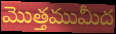
మొత్తముమీద